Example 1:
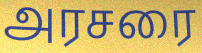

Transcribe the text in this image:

அரசரை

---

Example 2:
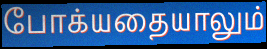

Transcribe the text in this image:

போக்யதையாலும்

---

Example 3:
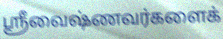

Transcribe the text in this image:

ஸ்ரீவைஷ்ணவர்களைக்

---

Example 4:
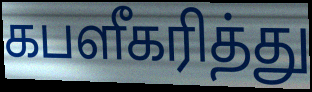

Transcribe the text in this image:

கபளீகரித்து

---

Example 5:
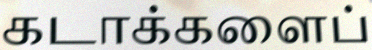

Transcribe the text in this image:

கடாக்களைப்